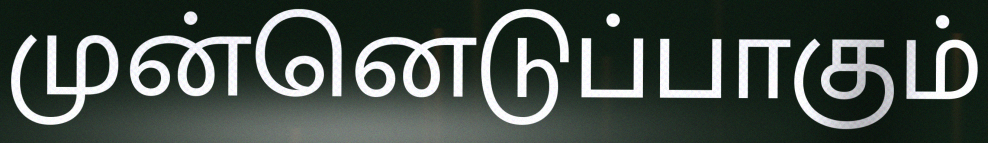
முன்னெடுப்பாகும்